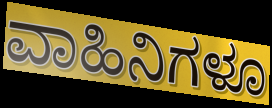
ವಾಹಿನಿಗಳೂ